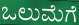
ಒಲುಮೆಗೆ